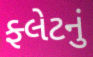
ફ્લેટનું